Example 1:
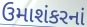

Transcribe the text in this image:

ઉમાશંકરનાં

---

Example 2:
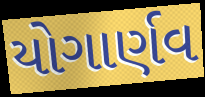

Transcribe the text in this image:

યોગાર્ણવ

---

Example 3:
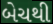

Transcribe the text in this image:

બેચથી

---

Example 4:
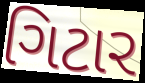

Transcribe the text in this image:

ગિટાર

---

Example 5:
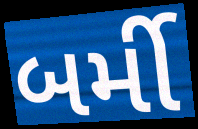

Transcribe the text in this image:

બર્મી